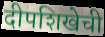
दीपशिखेची